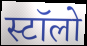
स्टॉलो